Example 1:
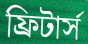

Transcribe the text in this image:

ফ্রিটার্স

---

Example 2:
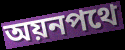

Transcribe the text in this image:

অয়নপথে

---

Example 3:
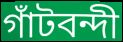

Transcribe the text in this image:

গাঁটবন্দী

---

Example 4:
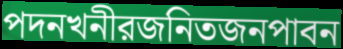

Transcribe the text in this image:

পদনখনীরজনিতজনপাবন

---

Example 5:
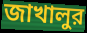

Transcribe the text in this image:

জাখালুর